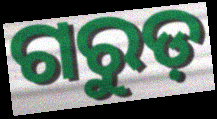
ଗରୁଡ଼